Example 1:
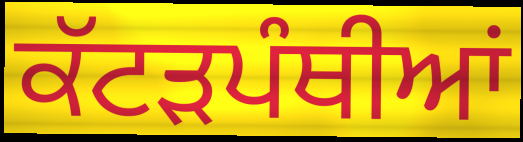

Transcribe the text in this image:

ਕੱਟੜਪੰਥੀਆਂ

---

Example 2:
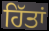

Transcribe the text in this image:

ਹਿੱਤਾਂ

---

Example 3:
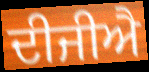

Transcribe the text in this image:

ਦੀਜੀਐ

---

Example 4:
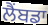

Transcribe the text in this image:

ਲੈਂਬਡਾ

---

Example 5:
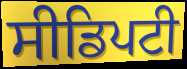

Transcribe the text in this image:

ਸੀਡਿਪਟੀ